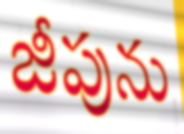
జీపును